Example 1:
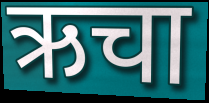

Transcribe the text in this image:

ऋचा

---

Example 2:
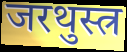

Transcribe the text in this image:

जरथुस्‍त्र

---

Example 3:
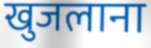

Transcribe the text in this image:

खुजलाना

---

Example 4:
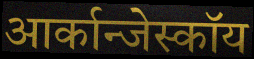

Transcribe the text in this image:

आर्कान्जेस्कॉय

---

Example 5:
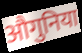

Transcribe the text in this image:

औगुनिया